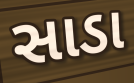
સાડા